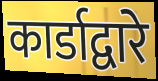
कार्डाद्वारे